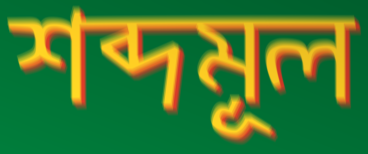
শব্দমূল